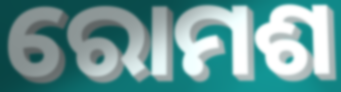
ରୋମଶ